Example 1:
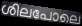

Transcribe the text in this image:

ശിലപോലെ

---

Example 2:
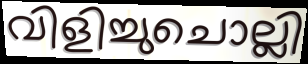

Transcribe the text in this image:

വിളിച്ചുചൊല്ലി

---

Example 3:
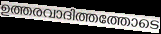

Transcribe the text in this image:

ഉത്തരവാദിത്തത്തോടെ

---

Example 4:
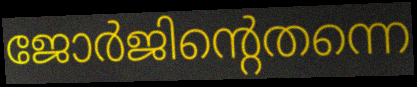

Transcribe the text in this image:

ജോർജിന്റെതന്നെ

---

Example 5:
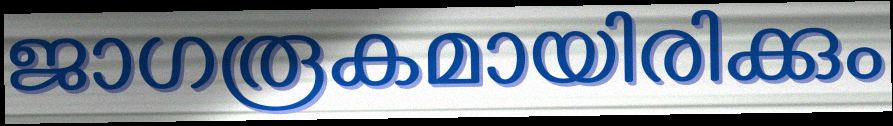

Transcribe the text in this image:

ജാഗരൂകമായിരിക്കും